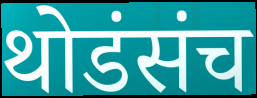
थोडंसंच